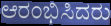
ಆರಂಭಿಸಿದರು